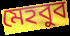
মেহবুব